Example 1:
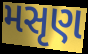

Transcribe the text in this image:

મસૃણ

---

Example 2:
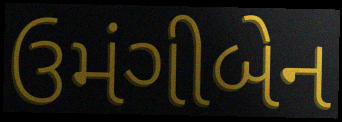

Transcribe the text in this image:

ઉમંગીબેન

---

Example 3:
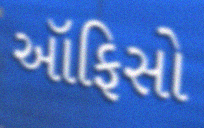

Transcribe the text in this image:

ઑફિસો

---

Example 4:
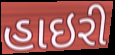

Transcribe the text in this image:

હાઇરી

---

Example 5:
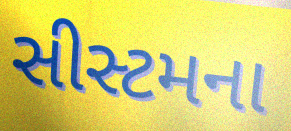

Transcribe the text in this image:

સીસ્ટમના